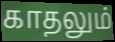
காதலும்